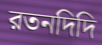
রতনদিদি